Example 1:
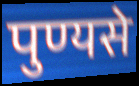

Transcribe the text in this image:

पुण्यसे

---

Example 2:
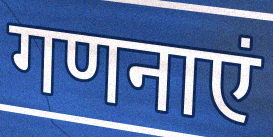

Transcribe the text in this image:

गणनाएं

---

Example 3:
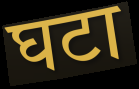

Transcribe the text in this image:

घटा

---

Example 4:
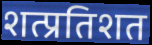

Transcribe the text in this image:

शत्प्रतिशत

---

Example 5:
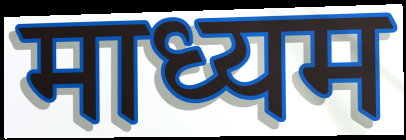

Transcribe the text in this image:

माध्यम